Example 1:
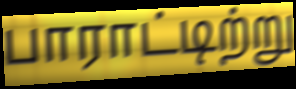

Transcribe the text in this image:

பாராட்டிற்று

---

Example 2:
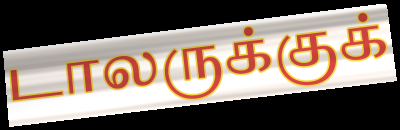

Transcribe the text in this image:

டாலருக்குக்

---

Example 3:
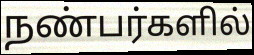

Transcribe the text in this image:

நண்பர்களில்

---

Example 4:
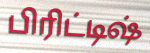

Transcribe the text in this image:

பிரிட்டிஷ்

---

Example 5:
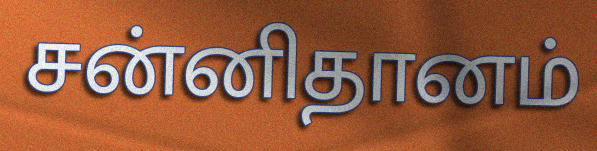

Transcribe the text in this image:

சன்னிதானம்